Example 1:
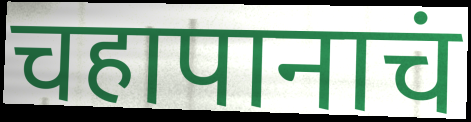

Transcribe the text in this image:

चहापानाचं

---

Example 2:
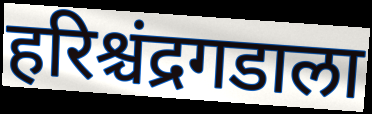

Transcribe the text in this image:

हरिश्चंद्रगडाला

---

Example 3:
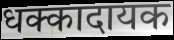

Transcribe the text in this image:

धक्‍कादायक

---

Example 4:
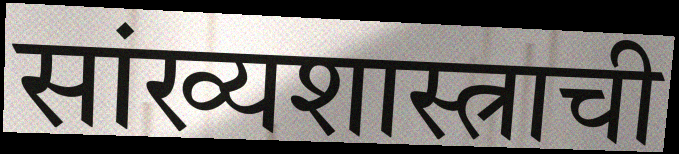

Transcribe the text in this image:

सांख्यशास्त्राची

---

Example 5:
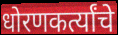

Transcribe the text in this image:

धोरणकर्त्यांचे